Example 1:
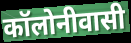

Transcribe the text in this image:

कॉलोनीवासी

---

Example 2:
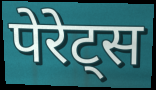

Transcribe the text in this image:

पेरेट्स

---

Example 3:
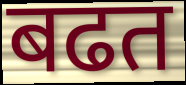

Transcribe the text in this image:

बढत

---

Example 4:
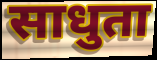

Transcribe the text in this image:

साधुता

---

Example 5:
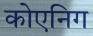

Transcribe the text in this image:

कोएनिग